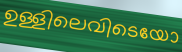
ഉള്ളിലെവിടെയോ